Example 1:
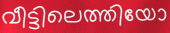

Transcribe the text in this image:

വീട്ടിലെത്തിയോ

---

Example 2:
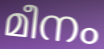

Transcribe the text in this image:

മീനം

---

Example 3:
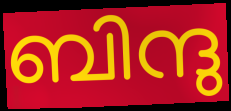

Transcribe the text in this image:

ബിന്ദു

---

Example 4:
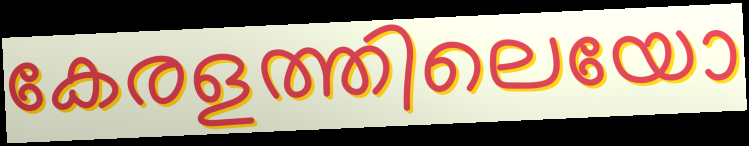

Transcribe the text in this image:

കേരളത്തിലെയോ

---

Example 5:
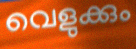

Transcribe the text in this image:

വെളുക്കും